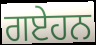
ਗਏਹਨ